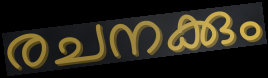
രചനക്കും